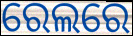
ରେଲରେ